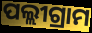
ପଲ୍ଲୀଗ୍ରାମ